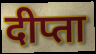
दीप्ता